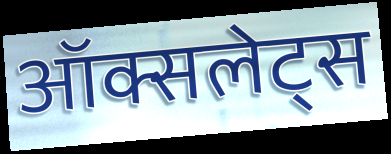
ऑक्सलेट्स